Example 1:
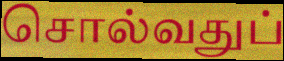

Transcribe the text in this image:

சொல்வதுப்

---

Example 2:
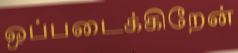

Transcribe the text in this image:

ஒப்படைக்கிறேன்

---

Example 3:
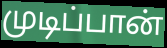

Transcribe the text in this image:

முடிப்பான்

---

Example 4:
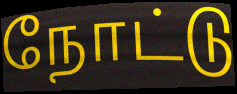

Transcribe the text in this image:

நோட்டு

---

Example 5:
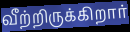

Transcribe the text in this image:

வீற்றிருக்கிறார்